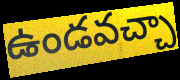
ఉండవచ్చా